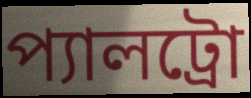
প্যালট্রো